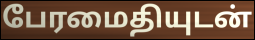
பேரமைதியுடன்